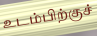
உடம்பிற்குச்